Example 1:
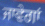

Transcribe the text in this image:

ਜਾਵੇਗਾਂ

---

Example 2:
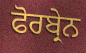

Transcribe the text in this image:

ਫੋਰਬ੍ਰੇਨ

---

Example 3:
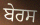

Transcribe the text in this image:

ਬੇਰਸ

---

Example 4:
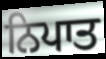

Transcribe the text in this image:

ਨਿਪਾਤ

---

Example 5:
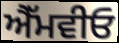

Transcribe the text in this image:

ਐੱਮਵੀਓ